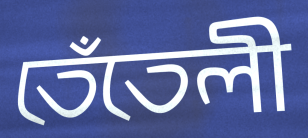
তেঁতেলী